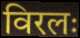
विरलः